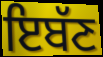
ਇਬੱਣ